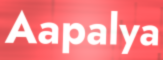
Aapalya